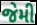
જેમી